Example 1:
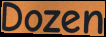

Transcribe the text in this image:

Dozen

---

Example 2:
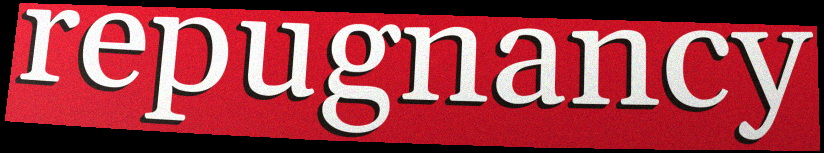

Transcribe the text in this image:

repugnancy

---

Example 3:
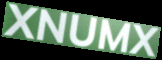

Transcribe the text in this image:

XNUMX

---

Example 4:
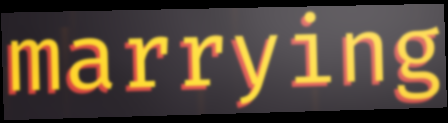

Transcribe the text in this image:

marrying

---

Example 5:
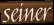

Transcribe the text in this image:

seiner